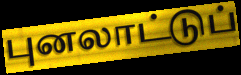
புனலாட்டுப்